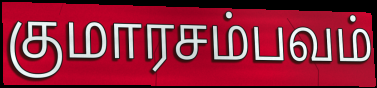
குமாரசம்பவம்